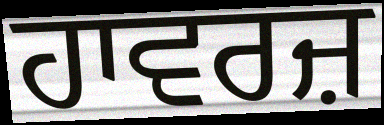
ਹਾਵਰਜ਼